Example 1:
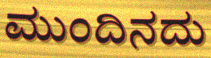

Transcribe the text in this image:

ಮುಂದಿನದು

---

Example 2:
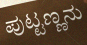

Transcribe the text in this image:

ಪುಟ್ಟಣ್ಣನು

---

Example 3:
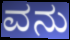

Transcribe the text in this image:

ವನು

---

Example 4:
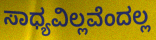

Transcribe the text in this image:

ಸಾಧ್ಯವಿಲ್ಲವೆಂದಲ್ಲ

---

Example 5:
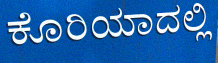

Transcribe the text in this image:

ಕೊರಿಯಾದಲ್ಲಿ